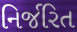
નિર્જરિત